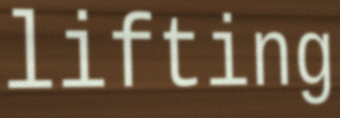
lifting